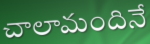
చాలామందినే